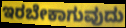
ಇರಬೇಕಾಗುವುದು